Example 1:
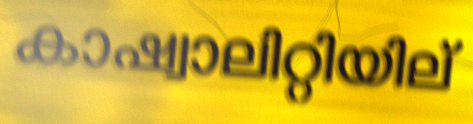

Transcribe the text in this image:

കാഷ്വാലിറ്റിയില്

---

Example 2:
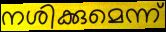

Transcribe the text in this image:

നശിക്കുമെന്ന്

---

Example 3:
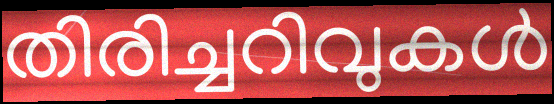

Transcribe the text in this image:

തിരിച്ചറിവുകൾ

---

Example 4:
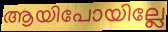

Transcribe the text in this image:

ആയിപോയില്ലേ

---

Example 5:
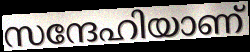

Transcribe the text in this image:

സന്ദേഹിയാണ്